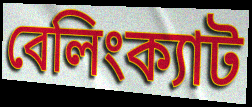
বেলিংক্যাট